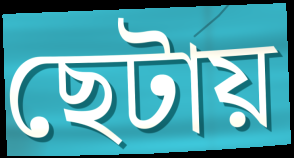
ছেটায়